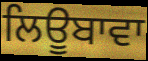
ਲਿਊਬਾਵਾ